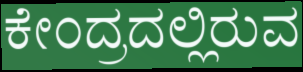
ಕೇಂದ್ರದಲ್ಲಿರುವ